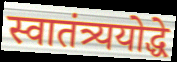
स्वातंत्र्ययोद्धे